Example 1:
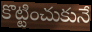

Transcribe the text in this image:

కొట్టించుకునే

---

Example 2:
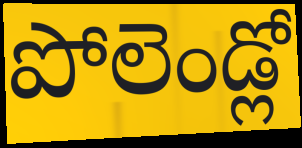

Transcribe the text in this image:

పోలెండ్లో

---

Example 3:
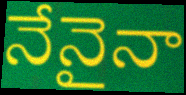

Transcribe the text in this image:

నేనైనా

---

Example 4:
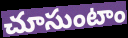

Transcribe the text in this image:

చూసుంటాం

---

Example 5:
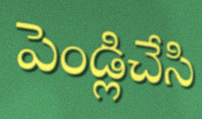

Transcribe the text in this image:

పెండ్లిచేసి